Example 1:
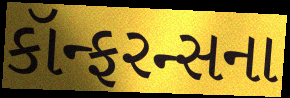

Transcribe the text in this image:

કૉન્ફરન્સના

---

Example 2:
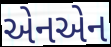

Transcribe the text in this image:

એનએન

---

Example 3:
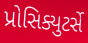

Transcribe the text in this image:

પ્રોસિક્યુટર્સે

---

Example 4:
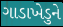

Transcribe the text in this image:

ગાડાખેડુને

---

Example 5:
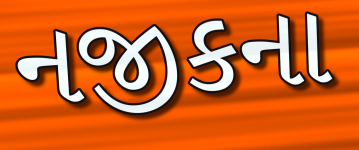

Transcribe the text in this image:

નજીકના